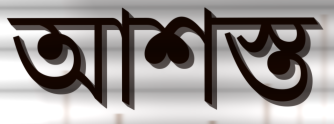
আশস্ত